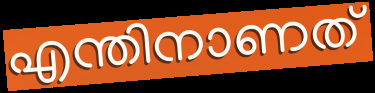
എന്തിനാണത്